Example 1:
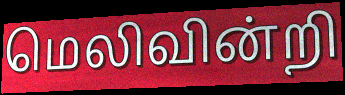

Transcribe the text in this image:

மெலிவின்றி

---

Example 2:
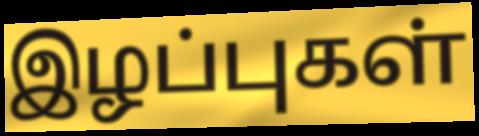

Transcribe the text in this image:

இழப்புகள்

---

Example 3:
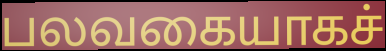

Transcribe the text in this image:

பலவகையாகச்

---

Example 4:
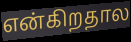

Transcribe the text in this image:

என்கிறதால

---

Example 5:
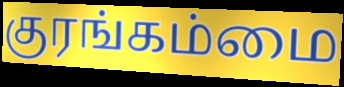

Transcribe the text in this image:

குரங்கம்மை